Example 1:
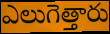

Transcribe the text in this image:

ఎలుగెత్తారు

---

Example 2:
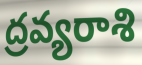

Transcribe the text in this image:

ద్రవ్యరాశి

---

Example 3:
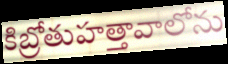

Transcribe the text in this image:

కిబ్రోతుహత్తావాలోను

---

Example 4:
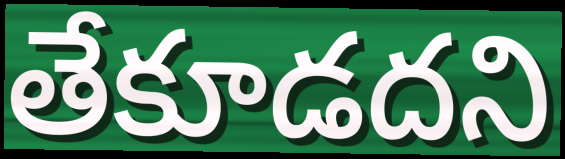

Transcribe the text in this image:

తేకూడదని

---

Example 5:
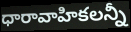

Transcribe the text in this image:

ధారావాహికలన్నీ